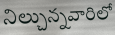
నిల్చున్నవారిలో